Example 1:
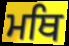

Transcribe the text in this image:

ਮਥਿ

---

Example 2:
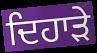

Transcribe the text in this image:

ਦਿਹਾਡ਼ੇ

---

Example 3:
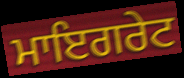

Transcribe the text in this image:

ਮਾਇਗਰੇਟ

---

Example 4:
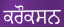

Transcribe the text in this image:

ਕਰੌਕਸਨ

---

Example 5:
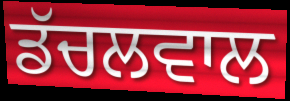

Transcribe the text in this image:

ਡੱਚਲਵਾਲ